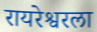
रायरेश्वरला